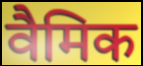
वैमिक